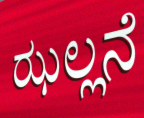
ಝಲ್ಲನೆ